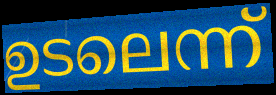
ഉടലെന്ന്